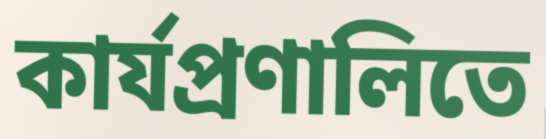
কার্যপ্রণালিতে